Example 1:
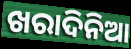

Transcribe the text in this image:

ଖରାଦିନିଆ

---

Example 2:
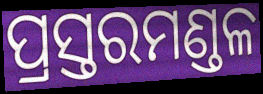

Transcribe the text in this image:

ପ୍ରସ୍ତରମଣ୍ଡଳ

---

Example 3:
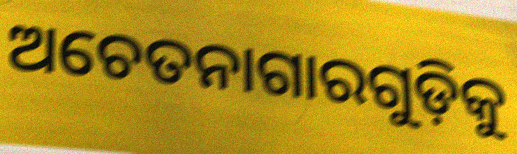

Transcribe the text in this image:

ଅଚେତନାଗାରଗୁଡ଼ିକୁ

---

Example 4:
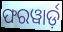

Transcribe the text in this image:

ଫରୱାର୍ଡ଼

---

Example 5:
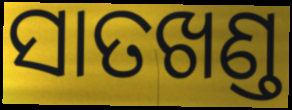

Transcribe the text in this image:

ସାତଖଣ୍ଡ